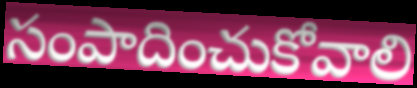
సంపాదించుకోవాలి